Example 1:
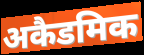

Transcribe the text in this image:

अकैडमिक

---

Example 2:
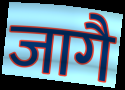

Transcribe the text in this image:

जागै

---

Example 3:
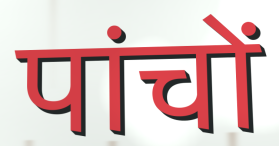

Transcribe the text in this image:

पांचों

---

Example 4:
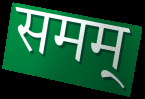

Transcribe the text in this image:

समम्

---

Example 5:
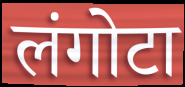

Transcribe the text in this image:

लंगोटा